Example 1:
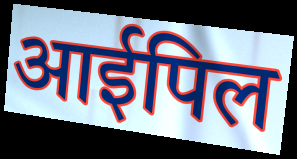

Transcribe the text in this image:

आईपिल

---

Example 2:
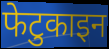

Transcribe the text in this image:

फेटुकाइन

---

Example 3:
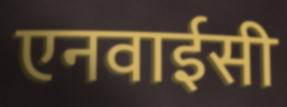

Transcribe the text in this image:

एनवाईसी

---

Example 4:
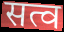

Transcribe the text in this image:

सत्व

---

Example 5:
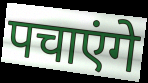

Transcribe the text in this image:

पचाएंगे